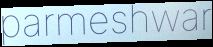
parmeshwar